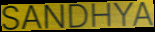
SANDHYA